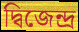
দ্বিজেন্দ্র